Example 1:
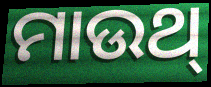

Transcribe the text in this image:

ମାଉଥ୍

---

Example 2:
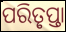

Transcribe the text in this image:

ପରିତୃପ୍ତା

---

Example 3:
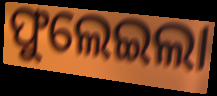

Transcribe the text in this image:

ଫୁଲେଇଲା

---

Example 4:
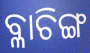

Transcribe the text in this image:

ବ୍ଳାଚିଙ୍ଗ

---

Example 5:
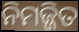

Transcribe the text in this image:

ନିମଜ୍ଜିତ